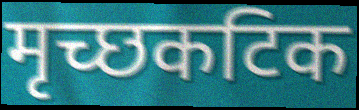
मृच्छकटिक